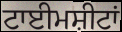
ਟਾਈਮਸ਼ੀਟਾਂ